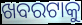
ଖବରଟାକୁ